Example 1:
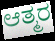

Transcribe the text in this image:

ಆತ್ಮರ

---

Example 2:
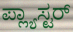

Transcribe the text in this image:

ಪ್ಲ್ಯಾಸ್ಟರ್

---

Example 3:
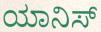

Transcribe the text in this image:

ಯಾನಿಸ್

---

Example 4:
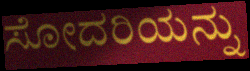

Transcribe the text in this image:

ಸೋದರಿಯನ್ನು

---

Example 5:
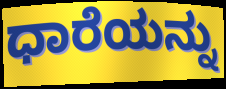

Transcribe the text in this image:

ಧಾರೆಯನ್ನು